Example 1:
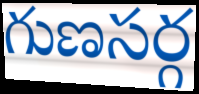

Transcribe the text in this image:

గుణసర్గ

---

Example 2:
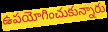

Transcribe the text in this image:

ఉపయోగించుకున్నారు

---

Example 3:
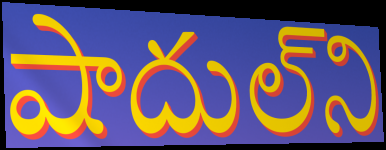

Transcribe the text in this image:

షాదుల్‌ని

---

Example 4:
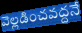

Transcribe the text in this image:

వెల్లడించవద్దనే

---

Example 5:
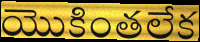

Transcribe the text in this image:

యొకింతలేక